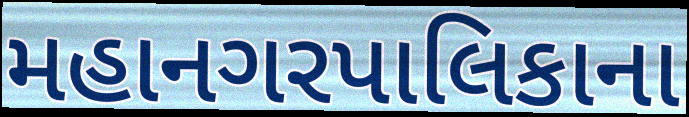
મહાનગરપાલિકાના